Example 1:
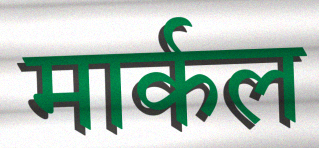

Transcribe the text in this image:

मार्कल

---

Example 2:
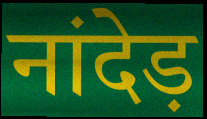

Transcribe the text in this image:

नांदेड़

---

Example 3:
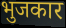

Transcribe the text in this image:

भुजकार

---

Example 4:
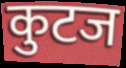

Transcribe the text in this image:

कुटज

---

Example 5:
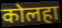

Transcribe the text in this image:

कोलहा